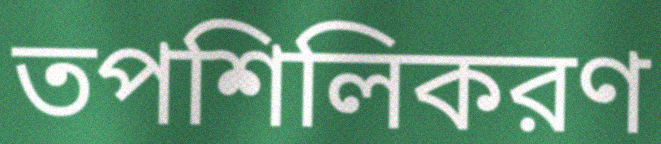
তপশিলিকরণ